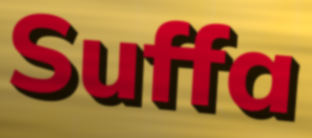
Suffa